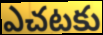
ఎచటకు